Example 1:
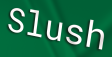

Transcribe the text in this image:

Slush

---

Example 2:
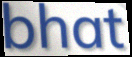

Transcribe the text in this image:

bhat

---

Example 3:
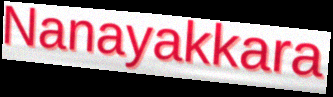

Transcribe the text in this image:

Nanayakkara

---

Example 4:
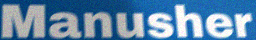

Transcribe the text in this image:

Manusher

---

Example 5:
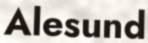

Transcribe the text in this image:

Alesund